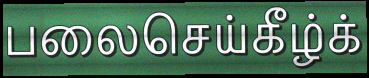
பலைசெய்கீழ்க்